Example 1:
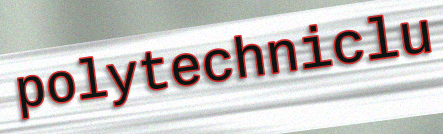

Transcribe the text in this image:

polytechniclu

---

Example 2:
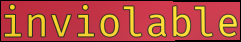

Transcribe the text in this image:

inviolable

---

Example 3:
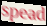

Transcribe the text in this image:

spead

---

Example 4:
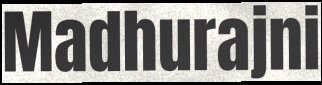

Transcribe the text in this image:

Madhurajni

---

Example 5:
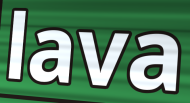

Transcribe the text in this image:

lava